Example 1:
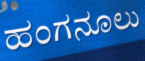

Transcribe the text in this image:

ಹಂಗನೂಲು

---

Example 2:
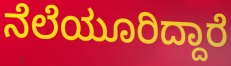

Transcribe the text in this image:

ನೆಲೆಯೂರಿದ್ದಾರೆ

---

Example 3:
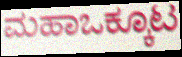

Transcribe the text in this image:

ಮಹಾಒಕ್ಕೂಟ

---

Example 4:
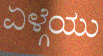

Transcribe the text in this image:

ಏಳ್ಗೆಯು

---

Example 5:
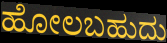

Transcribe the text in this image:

ಹೋಲಬಹುದು